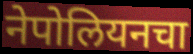
नेपोलियनचा